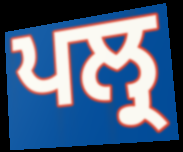
ਪਲ੍ਰ